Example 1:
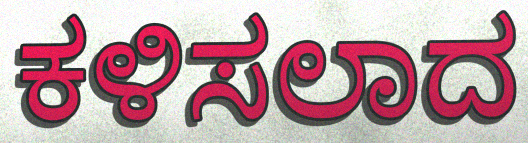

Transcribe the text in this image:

ಕಳಿಸಲಾದ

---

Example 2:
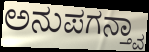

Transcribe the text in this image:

ಅನುಪಗನ್ತ್ವಾ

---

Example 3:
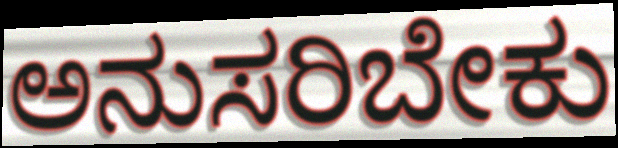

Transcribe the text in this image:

ಅನುಸರಿಬೇಕು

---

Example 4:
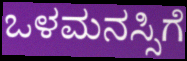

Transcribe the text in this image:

ಒಳಮನಸ್ಸಿಗೆ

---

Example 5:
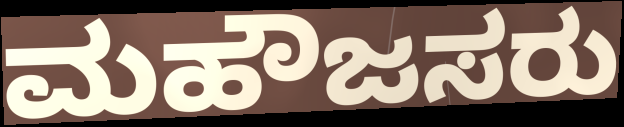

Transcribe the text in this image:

ಮಹೌಜಸರು